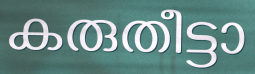
കരുതീട്ടാ